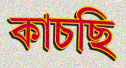
কাচছি